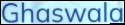
Ghaswala